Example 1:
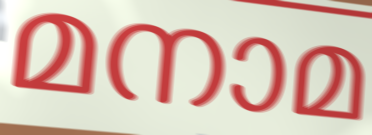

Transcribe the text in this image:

മനാമ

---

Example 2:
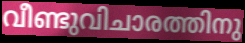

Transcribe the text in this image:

വീണ്ടുവിചാരത്തിനു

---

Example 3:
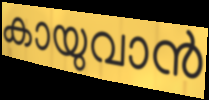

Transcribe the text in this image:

കായുവാൻ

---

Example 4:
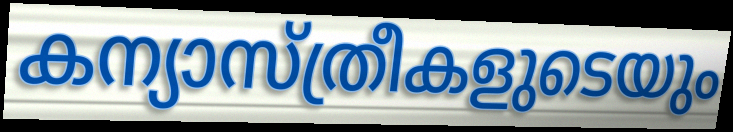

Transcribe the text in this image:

കന്യാസ്ത്രീകളുടെയും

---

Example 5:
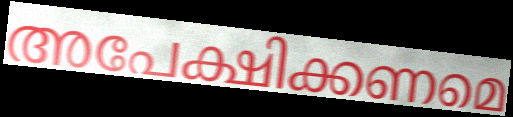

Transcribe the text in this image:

അപേക്ഷിക്കണമെ